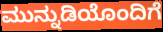
ಮುನ್ನುಡಿಯೊಂದಿಗೆ